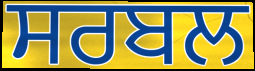
ਸਰਬਲ